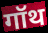
गॉथ